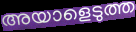
അയാളെടുത്ത